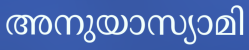
അനുയാസ്യാമി